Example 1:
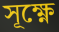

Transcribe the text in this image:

সূক্ষ্ণে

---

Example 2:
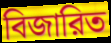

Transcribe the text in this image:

বিজারিত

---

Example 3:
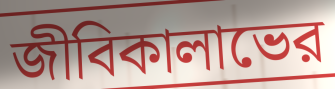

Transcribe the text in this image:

জীবিকালাভের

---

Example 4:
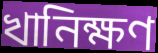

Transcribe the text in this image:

খানিক্ষণ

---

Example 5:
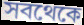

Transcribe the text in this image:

সবথেকে